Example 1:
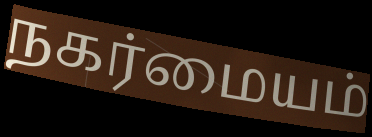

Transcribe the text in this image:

நகர்மையம்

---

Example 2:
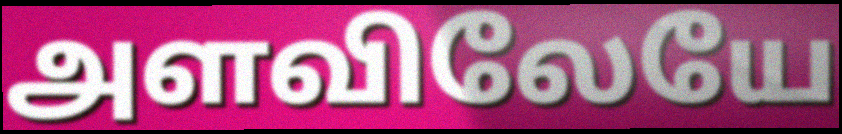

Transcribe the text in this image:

அளவிலேயே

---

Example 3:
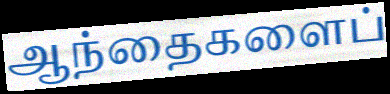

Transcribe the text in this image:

ஆந்தைகளைப்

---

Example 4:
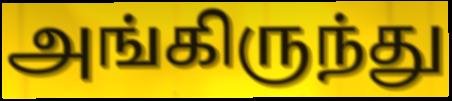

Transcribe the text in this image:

அங்கிருந்து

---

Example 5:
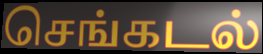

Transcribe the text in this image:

செங்கடல்